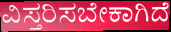
ವಿಸ್ತರಿಸಬೇಕಾಗಿದೆ